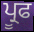
ਪ੍ਰੂਫ